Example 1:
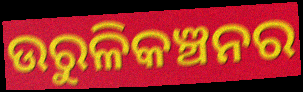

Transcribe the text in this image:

ଉରୁଳିକଞ୍ଚନର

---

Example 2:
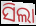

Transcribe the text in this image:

ସିଲା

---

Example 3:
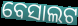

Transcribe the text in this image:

ବେସାଲଟ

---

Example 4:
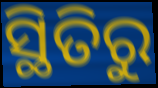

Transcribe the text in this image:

ସ୍ଥିତିରୁ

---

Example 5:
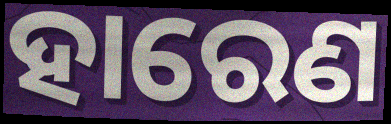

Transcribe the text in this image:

ହାରେଣ